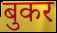
बुकर